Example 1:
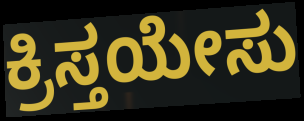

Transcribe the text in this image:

ಕ್ರಿಸ್ತಯೇಸು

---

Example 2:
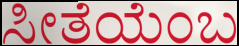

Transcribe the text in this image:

ಸೀತೆಯೆಂಬ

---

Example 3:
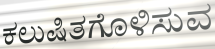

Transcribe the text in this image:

ಕಲುಷಿತಗೊಳಿಸುವ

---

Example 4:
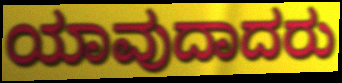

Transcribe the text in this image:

ಯಾವುದಾದರು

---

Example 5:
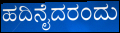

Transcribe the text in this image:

ಹದಿನೈದರಂದು